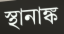
স্থানাঙ্ক